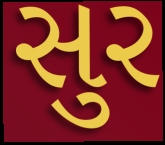
સુર